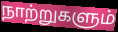
நாற்றுகளும்